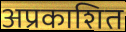
अप्रकाशित